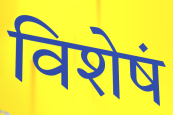
विशेषं